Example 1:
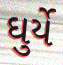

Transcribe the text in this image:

ઘુર્યે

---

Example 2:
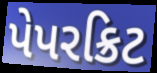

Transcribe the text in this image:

પેપરક્રિટ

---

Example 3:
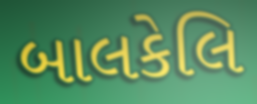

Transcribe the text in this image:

બાલકેલિ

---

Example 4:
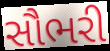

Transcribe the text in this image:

સૌભરી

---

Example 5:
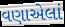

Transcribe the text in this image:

વણાએલાં